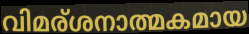
വിമര്ശനാത്മകമായ